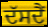
ਦੱਸਦੈਂ